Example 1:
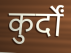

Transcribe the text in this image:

कुर्दों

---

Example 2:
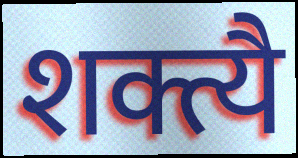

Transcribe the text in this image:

शक्त्यै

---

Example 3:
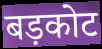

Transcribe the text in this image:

बड़कोट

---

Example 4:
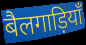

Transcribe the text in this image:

बैलगाड़ियाँ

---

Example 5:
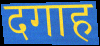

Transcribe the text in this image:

दगाह